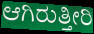
ಆಗಿರುತ್ತೀರಿ